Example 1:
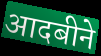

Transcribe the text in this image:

आदबीने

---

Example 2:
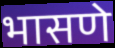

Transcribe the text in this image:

भासणे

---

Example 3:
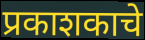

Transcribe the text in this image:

प्रकाशकाचे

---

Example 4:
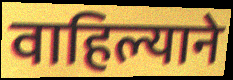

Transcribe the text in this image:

वाहिल्याने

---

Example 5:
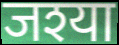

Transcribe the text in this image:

जश्या